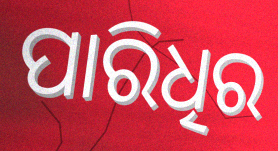
ପାରିଧିର